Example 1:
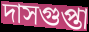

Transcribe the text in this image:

দাসগুপ্তা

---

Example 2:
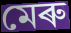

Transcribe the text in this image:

মেৰু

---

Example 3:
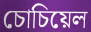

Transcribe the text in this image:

চোচিয়েল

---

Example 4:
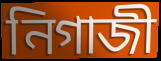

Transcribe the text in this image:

নিগাজী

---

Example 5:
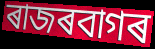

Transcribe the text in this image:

ৰাজৰবাগৰ